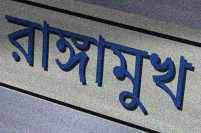
রাঙ্গামুখ